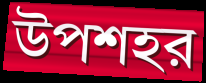
উপশহর